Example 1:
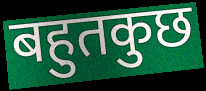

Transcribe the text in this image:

बहुतकुछ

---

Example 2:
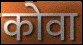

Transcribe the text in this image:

कोवा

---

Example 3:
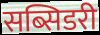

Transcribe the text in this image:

सब्सिडरी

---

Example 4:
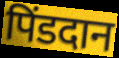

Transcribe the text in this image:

पिंडदान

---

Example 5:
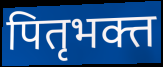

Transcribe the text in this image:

पितृभक्त